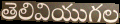
తెలివియుగల